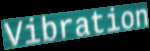
Vibration